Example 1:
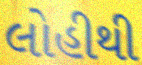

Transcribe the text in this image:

લોહીથી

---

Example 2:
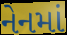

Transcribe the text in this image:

નેનમાં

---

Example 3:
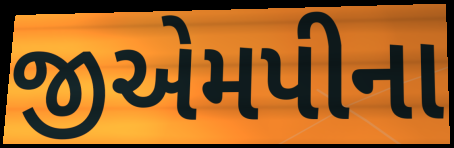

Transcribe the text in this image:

જીએમપીના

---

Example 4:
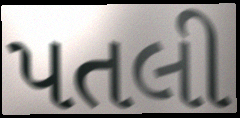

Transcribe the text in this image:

પતલી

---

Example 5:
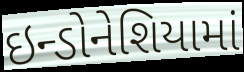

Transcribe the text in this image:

ઇન્ડોનેશિયામાં